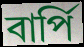
বার্পি